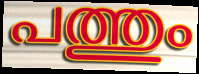
പത്തും